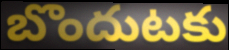
బొందుటకు